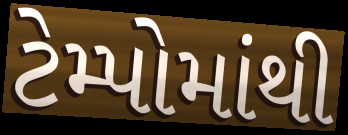
ટેમ્પોમાંથી